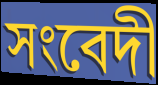
সংবেদী